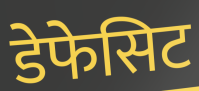
डेफेसिट